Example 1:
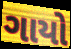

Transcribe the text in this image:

ગાયો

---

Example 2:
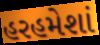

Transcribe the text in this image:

હરહમેશાં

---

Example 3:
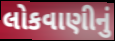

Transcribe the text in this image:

લોકવાણીનું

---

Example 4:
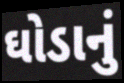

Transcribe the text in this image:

ઘોડાનું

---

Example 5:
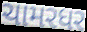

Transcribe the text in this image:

ચામરધર